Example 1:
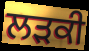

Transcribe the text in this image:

ਲੜਕੀ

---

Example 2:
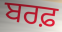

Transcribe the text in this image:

ਬਰਫ਼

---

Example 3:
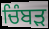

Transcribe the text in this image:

ਚਿੰਬੜ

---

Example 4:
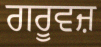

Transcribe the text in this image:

ਗਰੂਵਜ਼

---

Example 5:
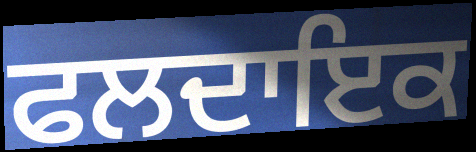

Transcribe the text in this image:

ਫਲਦਾਇਕ